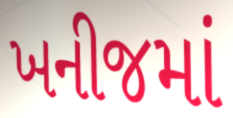
ખનીજમાં